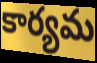
కార్యమ